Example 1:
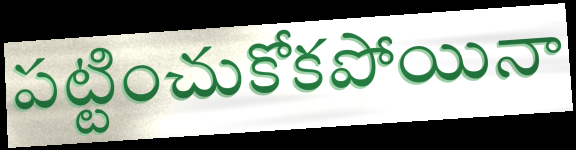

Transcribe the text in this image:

పట్టించుకోకపోయినా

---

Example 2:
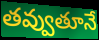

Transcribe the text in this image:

తవ్వుతూనే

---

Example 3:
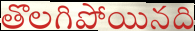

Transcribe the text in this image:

తొలగిపోయినది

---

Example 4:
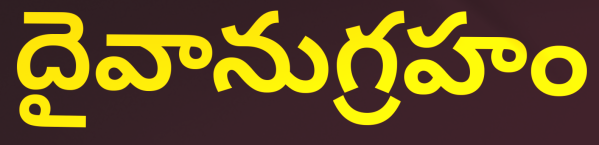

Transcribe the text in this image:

దైవానుగ్రహం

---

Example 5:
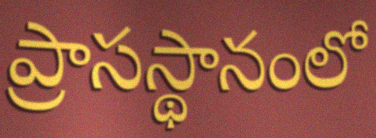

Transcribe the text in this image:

ప్రాసస్థానంలో